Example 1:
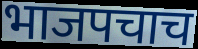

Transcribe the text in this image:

भाजपचाच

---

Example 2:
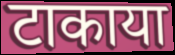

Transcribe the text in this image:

टाकाया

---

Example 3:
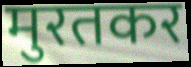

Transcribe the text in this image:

मुरतकर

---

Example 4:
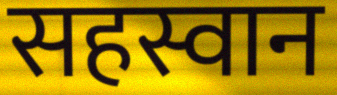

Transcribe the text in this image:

सहस्वान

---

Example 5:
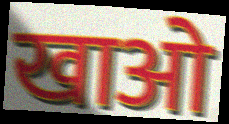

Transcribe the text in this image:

खाओ